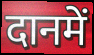
दानमें